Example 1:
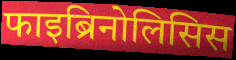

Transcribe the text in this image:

फाइब्रिनोलिसिस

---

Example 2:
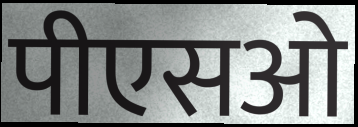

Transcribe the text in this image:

पीएसओ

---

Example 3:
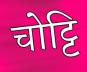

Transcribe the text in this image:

चोट्टि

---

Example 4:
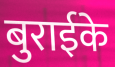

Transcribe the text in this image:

बुराईके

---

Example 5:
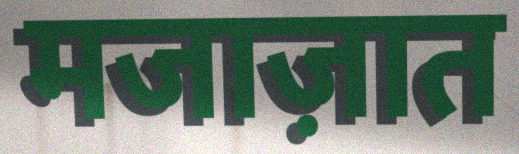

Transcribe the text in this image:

मजाज़ात